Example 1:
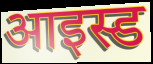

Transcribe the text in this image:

आइस्ड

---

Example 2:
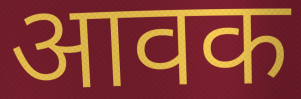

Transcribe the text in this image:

आवक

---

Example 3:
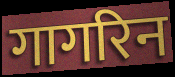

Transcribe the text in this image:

गागरिन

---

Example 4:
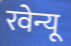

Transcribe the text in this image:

रवेन्यू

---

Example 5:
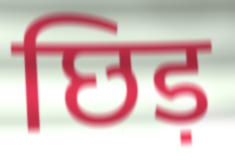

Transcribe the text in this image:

छिड़